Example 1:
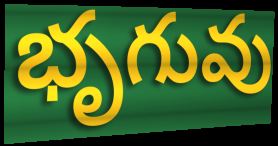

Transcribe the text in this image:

భృగువు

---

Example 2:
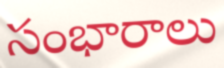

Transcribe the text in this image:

సంభారాలు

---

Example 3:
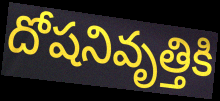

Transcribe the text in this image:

దోషనివృత్తికి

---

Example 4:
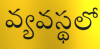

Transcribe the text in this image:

వ్యవస్థలో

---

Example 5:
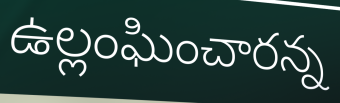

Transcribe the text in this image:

ఉల్లంఘించారన్న